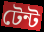
টেন্ট